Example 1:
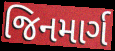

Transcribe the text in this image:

જિનમાર્ગ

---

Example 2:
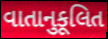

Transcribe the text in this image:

વાતાનુકૂલિત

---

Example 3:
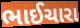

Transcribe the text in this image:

ભાઈચારા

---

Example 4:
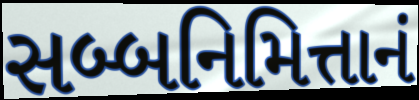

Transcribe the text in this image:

સબ્બનિમિત્તાનં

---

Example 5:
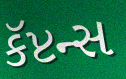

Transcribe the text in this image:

કૅપ્ટન્સ